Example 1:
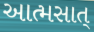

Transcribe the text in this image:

આત્મસાત્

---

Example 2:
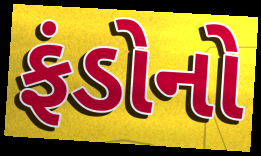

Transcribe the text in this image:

ફંડોનો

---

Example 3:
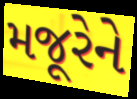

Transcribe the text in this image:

મજૂરેને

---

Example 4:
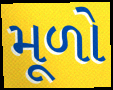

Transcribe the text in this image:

મૂળો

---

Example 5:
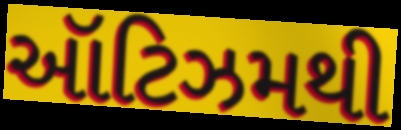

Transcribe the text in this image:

ઑટિઝમથી